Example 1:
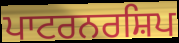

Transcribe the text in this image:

ਪਾਟਰਨਰਸ਼ਿਪ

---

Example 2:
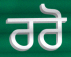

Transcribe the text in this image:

ਰਰੋ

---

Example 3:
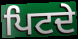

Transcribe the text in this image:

ਪਿਟਦੇ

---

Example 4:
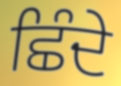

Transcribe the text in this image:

ਛਿੰਦੇ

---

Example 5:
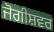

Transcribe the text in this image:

ਜੋਗੀਸ਼ਵਰ